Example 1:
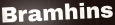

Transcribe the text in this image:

Bramhins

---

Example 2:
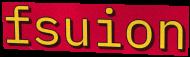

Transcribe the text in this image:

fsuion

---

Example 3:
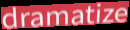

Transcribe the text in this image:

dramatize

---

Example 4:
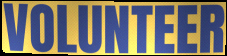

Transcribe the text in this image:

VOLUNTEER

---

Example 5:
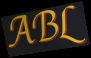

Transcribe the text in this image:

ABL